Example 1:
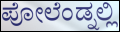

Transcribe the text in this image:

ಪೋಲೆಂಡ್ನಲ್ಲಿ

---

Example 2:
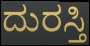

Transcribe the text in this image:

ದುರಸ್ತಿ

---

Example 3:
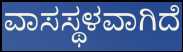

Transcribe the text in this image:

ವಾಸಸ್ಥಳವಾಗಿದೆ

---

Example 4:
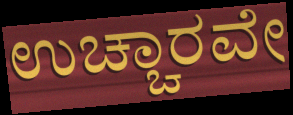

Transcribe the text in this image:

ಉಚ್ಚಾರವೇ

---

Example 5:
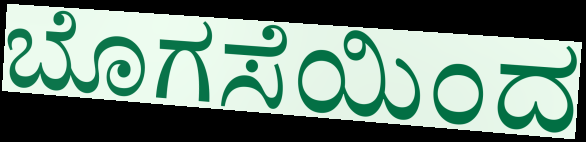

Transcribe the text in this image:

ಬೊಗಸೆಯಿಂದ